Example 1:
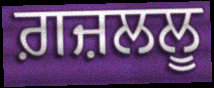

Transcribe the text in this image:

ਗ਼ਜ਼ਲਲੂ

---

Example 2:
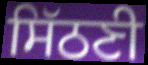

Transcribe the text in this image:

ਸਿੱਠਣੀ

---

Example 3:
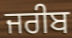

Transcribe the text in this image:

ਜਰੀਬ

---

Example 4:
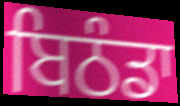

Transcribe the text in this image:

ਬਿਠੰਡਾ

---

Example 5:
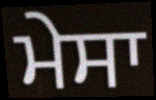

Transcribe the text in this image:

ਮੇਸਾ